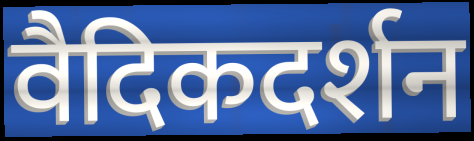
वैदिकदर्शन